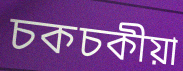
চকচকীয়া